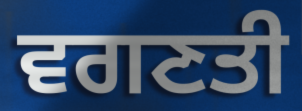
ਵਗਣਤੀ